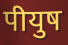
पीयुष